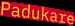
Padukare